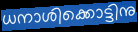
ധനാശിക്കൊട്ടിനു